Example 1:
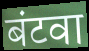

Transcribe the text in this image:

बंटवा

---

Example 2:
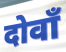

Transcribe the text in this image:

दोवाँ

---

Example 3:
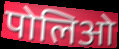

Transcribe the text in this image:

पोलिओ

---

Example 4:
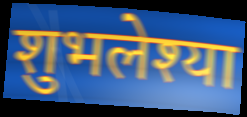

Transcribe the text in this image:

शुभलेश्या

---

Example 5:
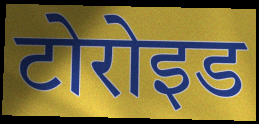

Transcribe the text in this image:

टोरोइड